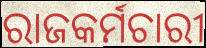
ରାଜକର୍ମଚାରୀ